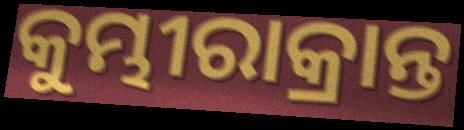
କୁମ୍ଭୀରାକ୍ରାନ୍ତ